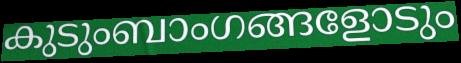
കുടുംബാംഗങ്ങളോടും